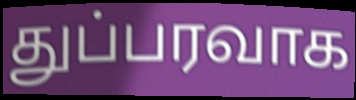
துப்பரவாக